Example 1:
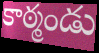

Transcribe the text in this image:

కాఠ్మండు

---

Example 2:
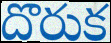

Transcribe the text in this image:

దొరుక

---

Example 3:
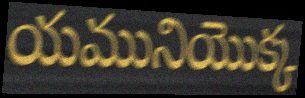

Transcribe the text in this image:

యమునియొక్క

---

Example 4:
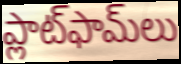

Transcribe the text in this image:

ప్లాట్‌ఫామ్‌లు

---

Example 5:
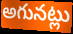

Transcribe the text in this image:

అగునట్లు